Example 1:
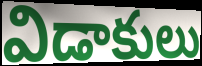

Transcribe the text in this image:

విడాకులు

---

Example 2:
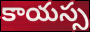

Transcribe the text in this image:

కాయస్స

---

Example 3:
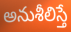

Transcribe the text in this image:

అనుశీలిస్తే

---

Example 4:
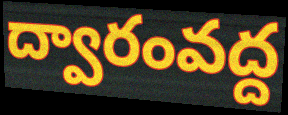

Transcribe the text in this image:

ద్వారంవద్ద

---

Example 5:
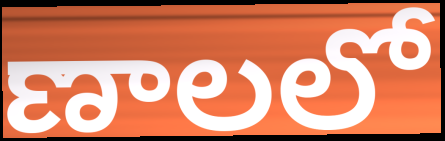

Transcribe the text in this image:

ణాలలో